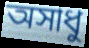
অসাধু